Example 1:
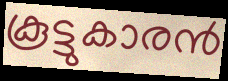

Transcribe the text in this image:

കൂട്ടുകാരൻ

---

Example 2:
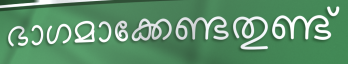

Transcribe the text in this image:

ഭാഗമാക്കേണ്ടതുണ്ട്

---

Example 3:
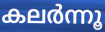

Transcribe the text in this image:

കലർന്നൂ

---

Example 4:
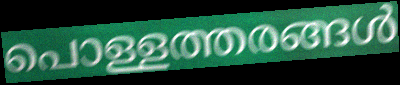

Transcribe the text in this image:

പൊള്ളത്തരങ്ങൾ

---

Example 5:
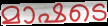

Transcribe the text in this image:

മാഷടെ